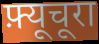
फ़्यूचूरा